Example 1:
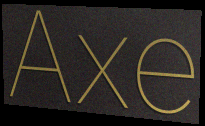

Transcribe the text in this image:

Axe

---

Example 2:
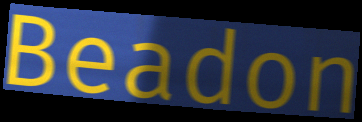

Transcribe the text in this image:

Beadon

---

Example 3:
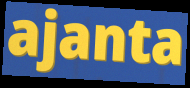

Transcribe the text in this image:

ajanta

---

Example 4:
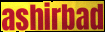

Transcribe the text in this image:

ashirbad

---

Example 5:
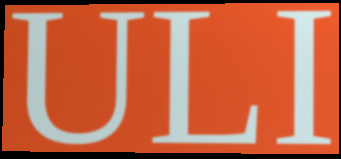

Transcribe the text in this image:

ULI